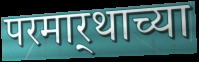
परमार्थाच्या